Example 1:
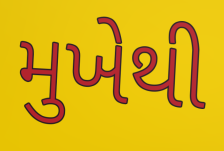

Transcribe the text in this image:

મુખેથી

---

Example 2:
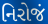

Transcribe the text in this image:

નિરોજં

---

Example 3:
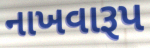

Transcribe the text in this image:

નાખવારૂપ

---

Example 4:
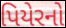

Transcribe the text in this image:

પિયેરનો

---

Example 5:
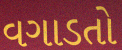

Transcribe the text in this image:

વગાડતો